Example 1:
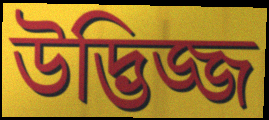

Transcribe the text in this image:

উদ্ভিজ্জ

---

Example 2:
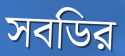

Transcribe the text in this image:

সবডির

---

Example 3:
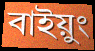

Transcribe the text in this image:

বাইয়ুং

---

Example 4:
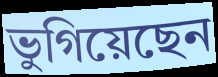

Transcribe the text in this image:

ভুগিয়েছেন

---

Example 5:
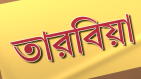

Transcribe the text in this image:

তারবিয়া